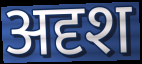
अदृश